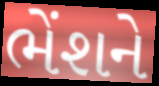
ભેંશને